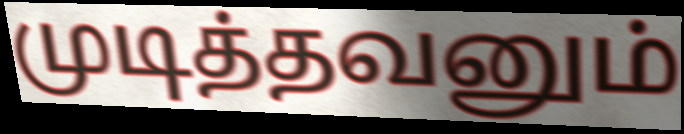
முடித்தவனும்